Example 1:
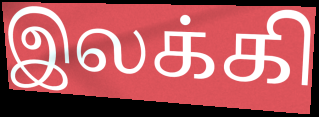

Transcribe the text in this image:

இலக்கி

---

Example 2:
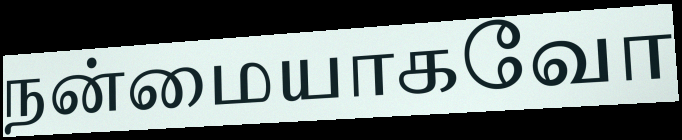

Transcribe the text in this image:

நன்மையாகவோ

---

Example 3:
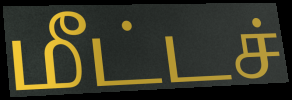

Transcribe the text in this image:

மீட்டச்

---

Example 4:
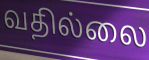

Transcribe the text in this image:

வதில்லை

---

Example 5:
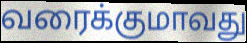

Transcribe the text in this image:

வரைக்குமாவது